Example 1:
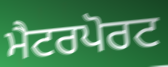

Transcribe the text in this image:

ਮੈਟਰਪੋਰਟ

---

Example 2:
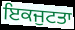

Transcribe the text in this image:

ਇਕਜੁਟਤਾ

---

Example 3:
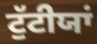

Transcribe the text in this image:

ਟੁੱਟੀਯਾਂ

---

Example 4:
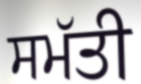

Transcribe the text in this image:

ਸਮੱਤੀ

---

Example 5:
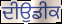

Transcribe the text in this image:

ਦੀਉਡੀਕ